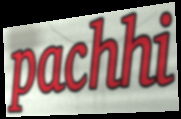
pachhi